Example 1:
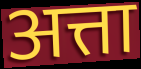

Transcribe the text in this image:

अत्ता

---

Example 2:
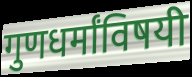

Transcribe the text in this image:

गुणधर्मांविषयी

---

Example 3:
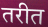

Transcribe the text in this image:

तरीत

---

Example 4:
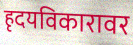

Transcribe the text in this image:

हृदयविकारावर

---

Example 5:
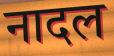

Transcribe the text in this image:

नादल